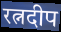
रत्नदीप